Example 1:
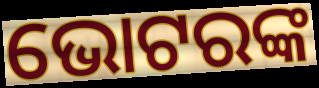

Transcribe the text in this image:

ଭୋଟରଙ୍କ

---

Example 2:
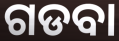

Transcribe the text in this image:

ଗଡବା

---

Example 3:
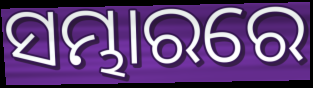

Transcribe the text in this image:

ସମ୍ଭାରରେ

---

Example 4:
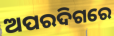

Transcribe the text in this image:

ଅପରଦିଗରେ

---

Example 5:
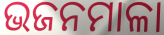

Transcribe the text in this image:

ଭଜନମାଳା